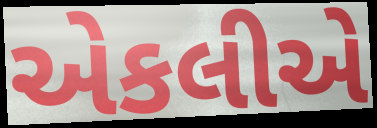
એકલીએ